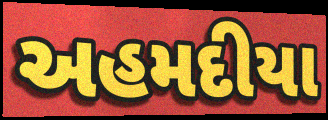
અહમદીયા